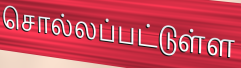
சொல்லப்பட்டுள்ள